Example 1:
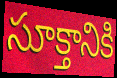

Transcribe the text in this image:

సూక్తానికి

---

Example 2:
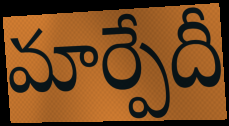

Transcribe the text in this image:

మార్పేదీ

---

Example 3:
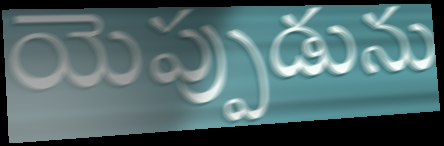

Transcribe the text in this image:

యెప్పుడును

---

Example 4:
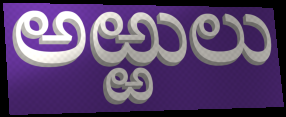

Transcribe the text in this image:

అఱ్ఱులు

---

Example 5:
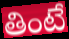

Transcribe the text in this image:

తింటే